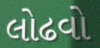
લોઢવો